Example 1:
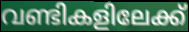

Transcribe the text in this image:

വണ്ടികളിലേക്ക്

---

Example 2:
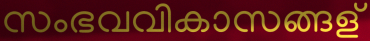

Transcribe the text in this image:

സംഭവവികാസങ്ങള്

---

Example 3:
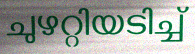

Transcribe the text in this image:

ചുഴറ്റിയടിച്ച്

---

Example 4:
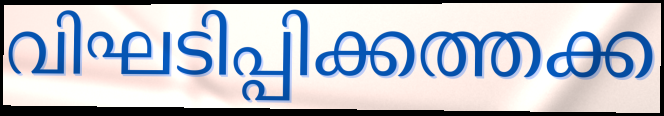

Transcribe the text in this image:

വിഘടിപ്പിക്കത്തക്ക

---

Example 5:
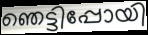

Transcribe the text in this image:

ഞെട്ടിപ്പോയി